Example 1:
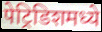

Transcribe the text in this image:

पेट्रिडिशमध्ये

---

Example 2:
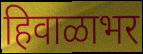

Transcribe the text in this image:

हिवाळाभर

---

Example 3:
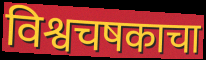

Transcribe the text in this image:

विश्वचषकाचा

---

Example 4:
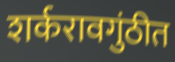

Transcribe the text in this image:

शर्करावगुंठीत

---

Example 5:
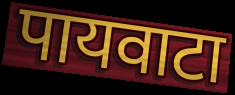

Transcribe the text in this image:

पायवाटा